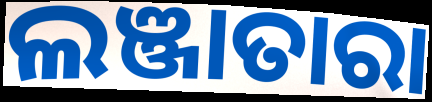
ଲଞ୍ଜାତାରା